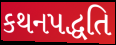
કથનપદ્ધતિ